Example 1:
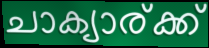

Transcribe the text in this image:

ചാക്യാര്ക്ക്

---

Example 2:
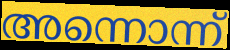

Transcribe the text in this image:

അന്നൊന്ന്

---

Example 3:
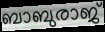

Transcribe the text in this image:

ബാബുരാജ്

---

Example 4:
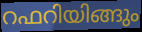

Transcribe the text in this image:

റഫറിയിങ്ങും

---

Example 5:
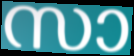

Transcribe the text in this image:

സാ